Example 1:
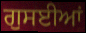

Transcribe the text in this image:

ਗੁਸਈਆਂ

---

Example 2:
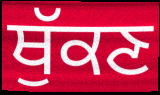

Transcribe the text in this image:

ਥੁੱਕਣ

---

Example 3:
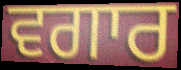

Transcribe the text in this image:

ਵਗਾਰ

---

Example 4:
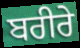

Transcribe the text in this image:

ਬਰੀਰੇ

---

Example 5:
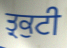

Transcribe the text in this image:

ਤ੍ਰਕੁਟੀ